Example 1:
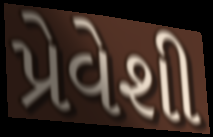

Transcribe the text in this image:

પ્રેવેશી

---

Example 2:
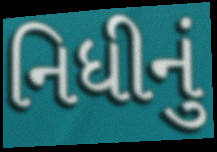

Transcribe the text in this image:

નિધીનું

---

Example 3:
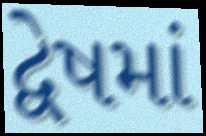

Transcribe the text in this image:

દ્વેષમાં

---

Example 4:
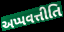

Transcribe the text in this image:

અપ્પવત્તીતિ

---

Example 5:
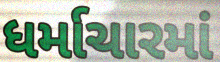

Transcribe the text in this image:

ધર્માચારમાં